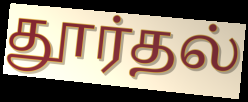
தூர்தல்